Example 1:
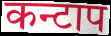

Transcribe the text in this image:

कन्टाप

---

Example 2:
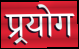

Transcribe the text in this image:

प्र्रयोग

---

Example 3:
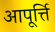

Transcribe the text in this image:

आपूर्त्ति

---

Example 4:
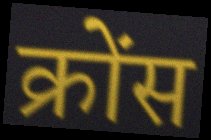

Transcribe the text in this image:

क्रोंस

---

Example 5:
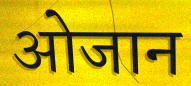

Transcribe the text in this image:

ओजान